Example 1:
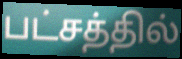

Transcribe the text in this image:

பட்சத்தில்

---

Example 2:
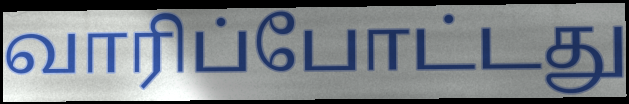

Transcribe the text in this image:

வாரிப்போட்டது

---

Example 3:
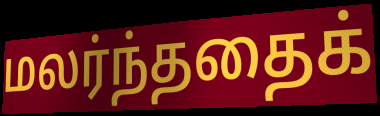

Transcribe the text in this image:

மலர்ந்ததைக்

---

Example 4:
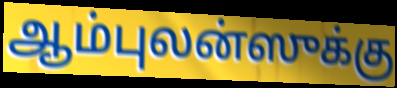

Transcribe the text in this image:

ஆம்புலன்ஸுக்கு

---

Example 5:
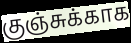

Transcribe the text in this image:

குஞ்சுக்காக